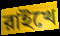
রাইখে